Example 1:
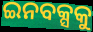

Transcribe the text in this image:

ଇନବକ୍ସକୁ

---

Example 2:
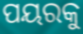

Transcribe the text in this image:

ପୟରକୁ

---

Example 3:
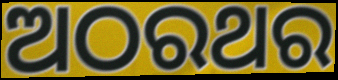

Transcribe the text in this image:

ଅଠରଥର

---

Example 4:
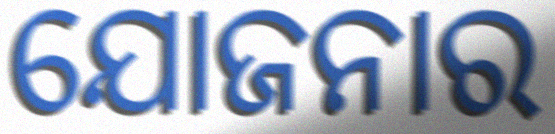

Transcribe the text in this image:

ଯୋଜନାର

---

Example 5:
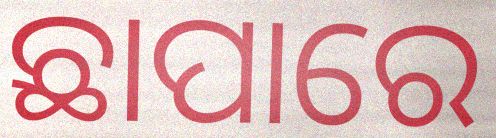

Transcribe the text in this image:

ଛାପାରେ